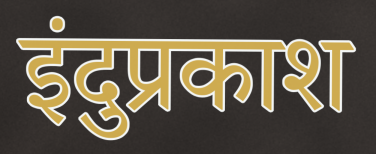
इंदुप्रकाश